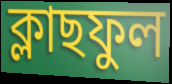
ক্লাছফুল